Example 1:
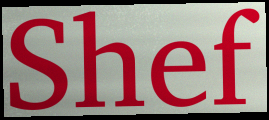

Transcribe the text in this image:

Shef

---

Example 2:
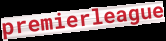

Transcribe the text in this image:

premierleague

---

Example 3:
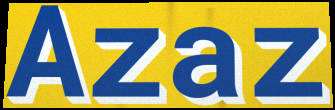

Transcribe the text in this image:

Azaz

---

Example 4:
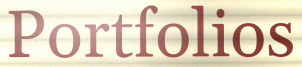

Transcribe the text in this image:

Portfolios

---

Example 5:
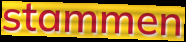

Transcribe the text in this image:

stammen